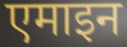
एमाइन